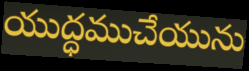
యుద్ధముచేయును